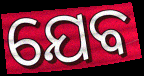
ଯେବ